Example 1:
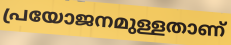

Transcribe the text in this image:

പ്രയോജനമുള്ളതാണ്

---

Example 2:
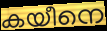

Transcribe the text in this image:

കയീനെ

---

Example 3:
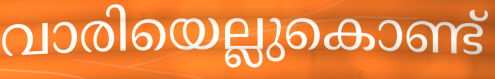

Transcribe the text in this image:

വാരിയെല്ലുകൊണ്ട്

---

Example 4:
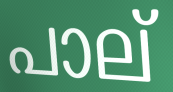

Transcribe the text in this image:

പാല്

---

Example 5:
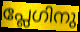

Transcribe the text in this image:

പ്ലേഗിനു